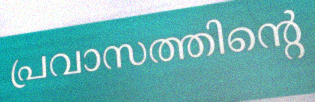
പ്രവാസത്തിന്റെ